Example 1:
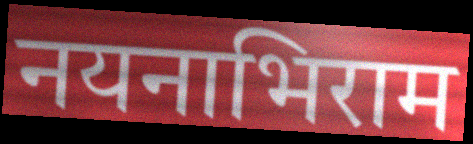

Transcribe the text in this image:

नयनाभिराम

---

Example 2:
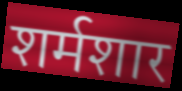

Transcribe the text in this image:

शर्मशार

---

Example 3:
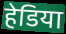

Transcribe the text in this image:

हेडिया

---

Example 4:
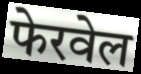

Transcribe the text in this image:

फेरवेल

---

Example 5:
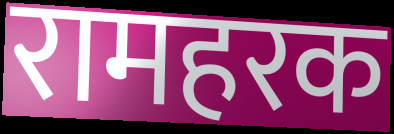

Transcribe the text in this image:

रामहरक